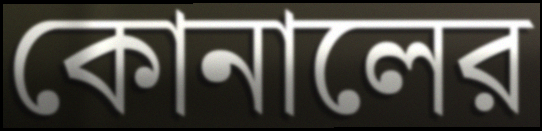
কোনালের